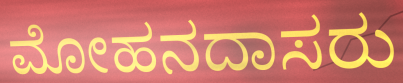
ಮೋಹನದಾಸರು